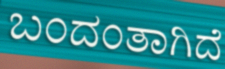
ಬಂದಂತಾಗಿದೆ